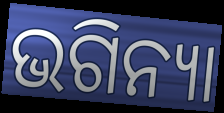
ଭଗିନ୍ୟା